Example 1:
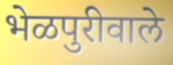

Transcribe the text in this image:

भेळपुरीवाले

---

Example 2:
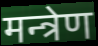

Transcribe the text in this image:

मन्त्रेण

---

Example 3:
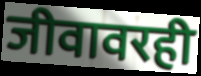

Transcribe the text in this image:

जीवावरही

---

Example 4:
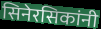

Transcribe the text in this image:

सिनेरसिकांनी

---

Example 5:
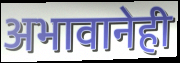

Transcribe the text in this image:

अभावानेही